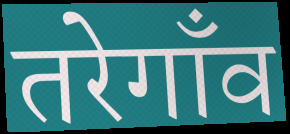
तरेगाँव